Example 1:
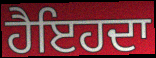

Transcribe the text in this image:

ਹੈਇਹਦਾ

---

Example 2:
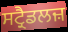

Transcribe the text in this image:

ਸਟ੍ਰੈਡਲਜ਼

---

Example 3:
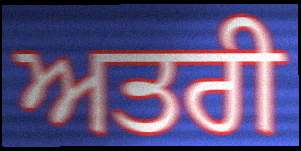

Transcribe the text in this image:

ਅਤਰੀ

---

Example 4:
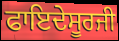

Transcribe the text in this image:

ਫਾਇਦੇਸੂਰਜੀ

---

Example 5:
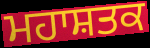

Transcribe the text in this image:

ਮਹਾਸ਼ਤਕ